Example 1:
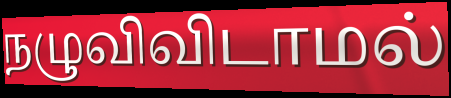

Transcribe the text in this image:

நழுவிவிடாமல்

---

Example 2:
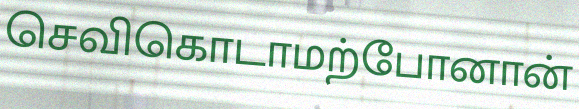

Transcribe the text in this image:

செவிகொடாமற்போனான்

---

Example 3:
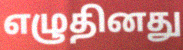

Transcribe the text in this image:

எழுதினது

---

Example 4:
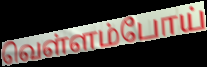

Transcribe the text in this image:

வெள்ளம்போய்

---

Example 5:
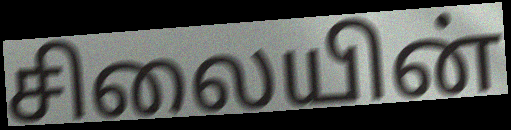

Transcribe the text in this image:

சிலையின்